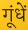
गूंधें